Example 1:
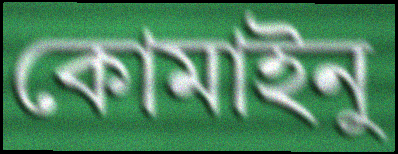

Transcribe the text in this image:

কোমাইনু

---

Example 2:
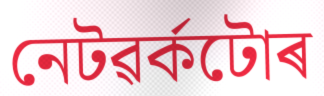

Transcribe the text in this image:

নেটৱৰ্কটোৰ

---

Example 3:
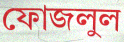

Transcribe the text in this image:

ফোজলুল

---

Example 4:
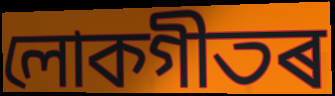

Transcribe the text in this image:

লোকগীতৰ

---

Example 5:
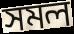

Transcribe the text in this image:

সমল